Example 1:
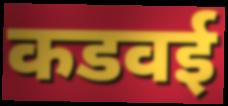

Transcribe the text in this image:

कडवई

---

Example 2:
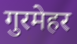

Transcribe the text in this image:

गुरमेहर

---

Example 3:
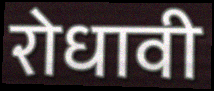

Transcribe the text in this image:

रोधावी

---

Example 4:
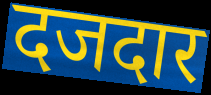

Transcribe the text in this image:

दजदार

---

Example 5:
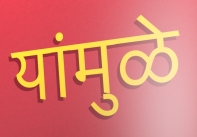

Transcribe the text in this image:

यांमुळे